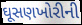
ઘૂસણખોરીની